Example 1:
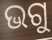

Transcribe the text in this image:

ଭଗୁ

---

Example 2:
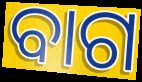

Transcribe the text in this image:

ବାଗ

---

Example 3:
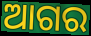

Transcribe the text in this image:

ଆଗର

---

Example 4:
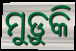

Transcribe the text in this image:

ମୁଡ଼ୁକି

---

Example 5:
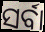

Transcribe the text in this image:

ସର୍ବା